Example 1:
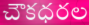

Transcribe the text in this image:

చౌకధరల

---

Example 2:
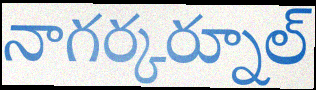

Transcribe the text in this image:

నాగర్కర్నూల్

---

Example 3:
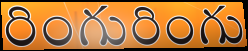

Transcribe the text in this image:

రింగురింగు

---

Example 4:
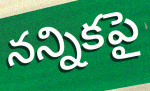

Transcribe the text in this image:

నన్నికపై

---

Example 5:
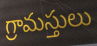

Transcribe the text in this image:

గ్రామస్తులు